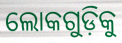
ଲୋକଗୁଡ଼ିକୁ